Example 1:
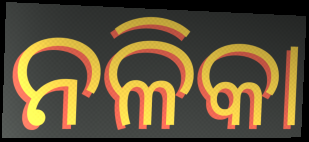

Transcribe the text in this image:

ନଳିକା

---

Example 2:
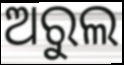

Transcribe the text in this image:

ଅରୁଲ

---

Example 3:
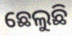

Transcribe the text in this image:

ଛେଲୁଛି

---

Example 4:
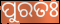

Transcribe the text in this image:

ପୁରତଃ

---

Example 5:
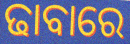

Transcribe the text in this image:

ଢାବାରେ